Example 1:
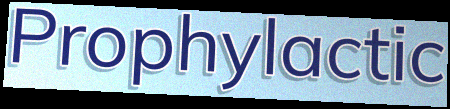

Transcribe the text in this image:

Prophylactic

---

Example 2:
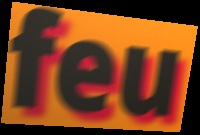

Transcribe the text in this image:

feu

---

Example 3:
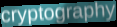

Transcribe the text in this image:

cryptography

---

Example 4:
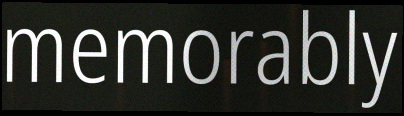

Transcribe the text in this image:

memorably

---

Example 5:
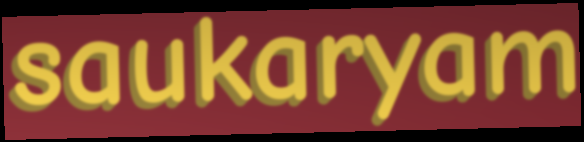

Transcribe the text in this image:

saukaryam